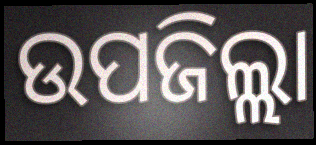
ଉପଜିଲ୍ଲା